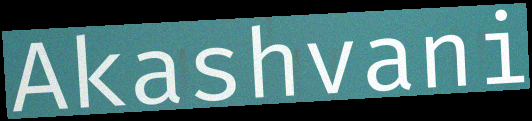
Akashvani